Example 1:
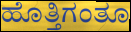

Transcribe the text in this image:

ಹೊತ್ತಿಗಂತೂ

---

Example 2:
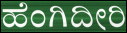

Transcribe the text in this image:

ಹೆಂಗಿದೀರಿ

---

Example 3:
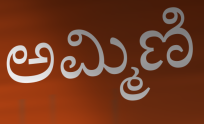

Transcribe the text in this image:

ಅಮ್ಮಿಣಿ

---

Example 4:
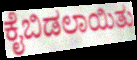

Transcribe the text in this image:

ಕೈಬಿಡಲಾಯಿತು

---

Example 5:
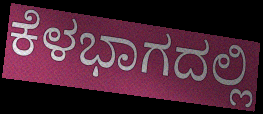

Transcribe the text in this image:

ಕೆಳಭಾಗದಲ್ಲಿ